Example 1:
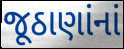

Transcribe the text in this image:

જૂઠાણાંનાં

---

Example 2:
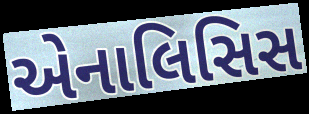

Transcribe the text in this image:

એનાલિસિસ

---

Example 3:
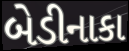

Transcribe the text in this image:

બેડીનાકા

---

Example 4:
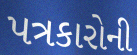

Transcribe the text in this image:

પત્રકારોની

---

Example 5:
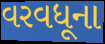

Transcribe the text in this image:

વરવધૂના